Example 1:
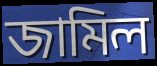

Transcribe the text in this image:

জামিল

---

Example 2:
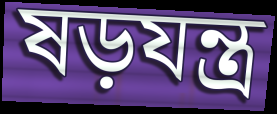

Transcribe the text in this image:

ষড়যন্ত্র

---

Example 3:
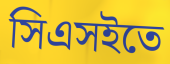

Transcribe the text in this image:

সিএসইতে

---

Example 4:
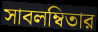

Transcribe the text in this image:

সাবলম্বিতার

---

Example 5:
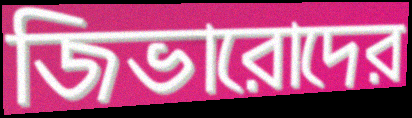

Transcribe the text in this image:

জিভারোদের